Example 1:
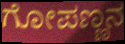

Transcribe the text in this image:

ಗೋಪಣ್ಣನ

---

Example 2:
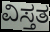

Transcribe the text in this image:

ವಿಸ್ತತ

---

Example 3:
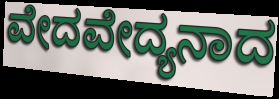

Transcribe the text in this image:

ವೇದವೇದ್ಯನಾದ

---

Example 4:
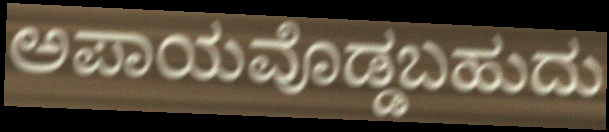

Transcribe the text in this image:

ಅಪಾಯವೊಡ್ಡಬಹುದು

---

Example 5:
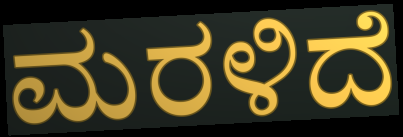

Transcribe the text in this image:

ಮರಳಿದೆ